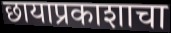
छायाप्रकाशाचा